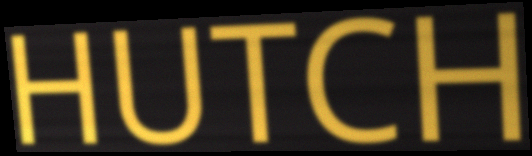
HUTCH